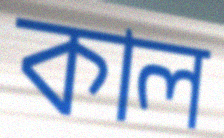
কাল